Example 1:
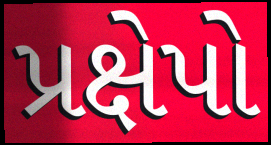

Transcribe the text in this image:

પ્રક્ષેપો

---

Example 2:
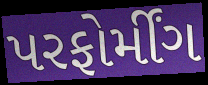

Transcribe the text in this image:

પરફોર્મીંગ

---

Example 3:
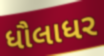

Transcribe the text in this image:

ધૌલાધર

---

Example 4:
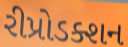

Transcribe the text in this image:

રીપ્રોડક્શન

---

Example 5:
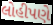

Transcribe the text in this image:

લોહીપણે